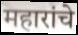
महारांचे